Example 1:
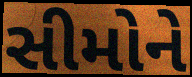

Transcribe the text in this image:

સીમોને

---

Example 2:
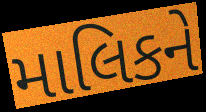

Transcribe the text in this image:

માલિકને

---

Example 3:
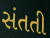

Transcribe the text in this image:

સંતતી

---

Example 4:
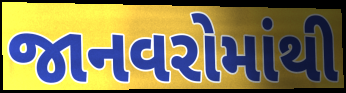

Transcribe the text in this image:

જાનવરોમાંથી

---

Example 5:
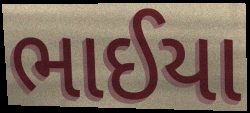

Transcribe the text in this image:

ભાઈયા